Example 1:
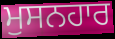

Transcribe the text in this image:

ਮੁਸਨਹਾਰ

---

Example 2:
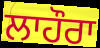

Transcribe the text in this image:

ਲਾਹੌਰਾ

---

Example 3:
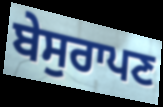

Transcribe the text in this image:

ਬੇਸੁਰਾਪਣ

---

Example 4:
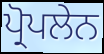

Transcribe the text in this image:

ਪ੍ਰੋਪਲੇਨ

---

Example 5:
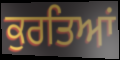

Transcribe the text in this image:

ਕੁਰਤਿਆਂ